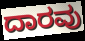
ದಾರವು